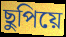
ছুপিয়ে